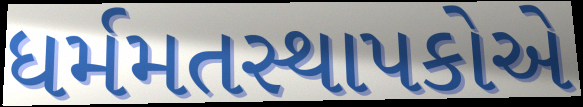
ધર્મમતસ્થાપકોએ